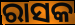
ରାସକ